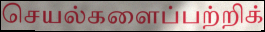
செயல்களைப்பற்றிக்